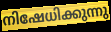
നിഷേധിക്കുന്നു